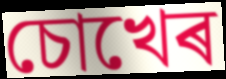
চোখেৰ